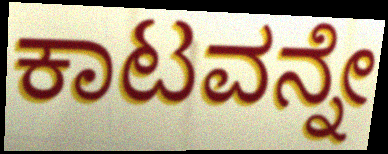
ಕಾಟವನ್ನೇ